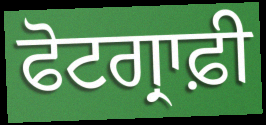
ਫੋਟਗ੍ਰਾਫ਼ੀ